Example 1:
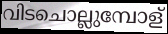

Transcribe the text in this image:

വിടചൊല്ലുമ്പോള്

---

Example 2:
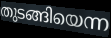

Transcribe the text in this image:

തുടങ്ങിയെന്ന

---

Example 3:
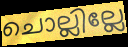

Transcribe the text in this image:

ചൊല്ലില്ലേ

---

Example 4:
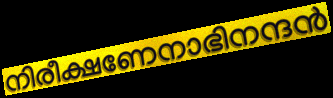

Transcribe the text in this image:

നിരീക്ഷണേനാഭിനന്ദൻ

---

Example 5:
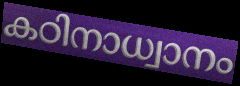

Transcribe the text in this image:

കഠിനാധ്വാനം